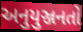
અનુયુઞ્જનતો